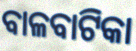
ବାଳବାଟିକା